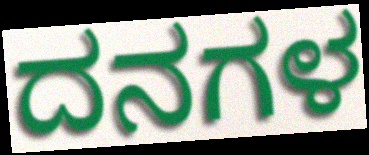
ದನಗಳ